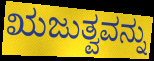
ಋಜುತ್ವವನ್ನು